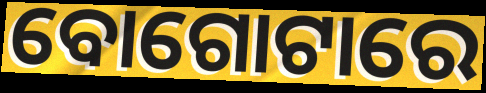
ବୋଗୋଟାରେ